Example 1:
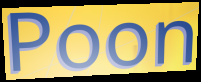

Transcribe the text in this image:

Poon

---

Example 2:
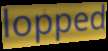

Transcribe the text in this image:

lopped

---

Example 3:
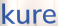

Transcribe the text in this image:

kure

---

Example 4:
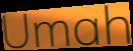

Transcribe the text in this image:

Umah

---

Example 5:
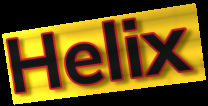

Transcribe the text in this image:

Helix